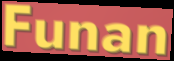
Funan